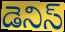
డెనిస్